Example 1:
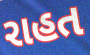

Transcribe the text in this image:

રાહત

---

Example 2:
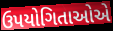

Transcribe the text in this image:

ઉપયોગિતાઓએ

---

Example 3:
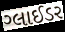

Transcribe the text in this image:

ગ્લાઈડર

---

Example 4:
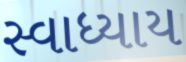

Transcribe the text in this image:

સ્વાધ્યાય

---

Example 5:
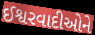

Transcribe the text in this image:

ઈશ્વરવાદીઓને